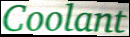
Coolant